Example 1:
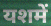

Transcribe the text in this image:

यशमें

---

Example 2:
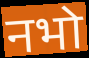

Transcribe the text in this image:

नभो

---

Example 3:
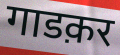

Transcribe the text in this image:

गाडक़र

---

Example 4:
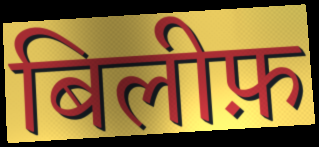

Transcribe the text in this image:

बिलीफ़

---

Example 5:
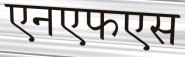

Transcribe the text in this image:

एनएफएस